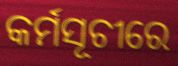
କର୍ମସୂଚୀରେ